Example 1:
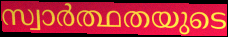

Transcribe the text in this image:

സ്വാർത്ഥതയുടെ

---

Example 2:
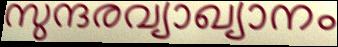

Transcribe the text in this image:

സുന്ദരവ്യാഖ്യാനം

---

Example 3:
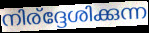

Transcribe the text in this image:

നിര്ദ്ദേശിക്കുന്ന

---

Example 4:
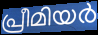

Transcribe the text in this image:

പ്രീമിയർ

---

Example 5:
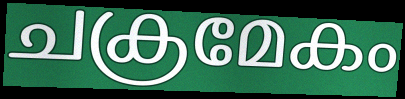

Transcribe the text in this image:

ചക്രമേകം